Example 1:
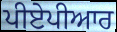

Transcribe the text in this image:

ਪੀਏਪੀਆਰ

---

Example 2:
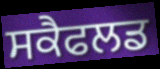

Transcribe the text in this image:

ਸਕੈਫਲਡ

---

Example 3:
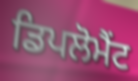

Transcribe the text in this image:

ਡਿਪਲੋਮੈਂਟ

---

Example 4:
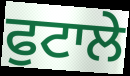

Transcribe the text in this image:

ਫੁਟਾਲੇ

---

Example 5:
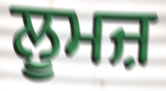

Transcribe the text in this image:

ਲੂਮਜ਼